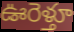
ఊరెళ్తూ